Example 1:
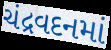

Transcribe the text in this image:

ચંદ્રવદનમાં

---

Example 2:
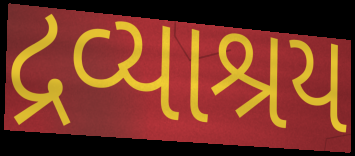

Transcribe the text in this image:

દ્રવ્યાશ્રય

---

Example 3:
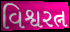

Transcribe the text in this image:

વિશ્વરત્ન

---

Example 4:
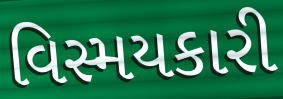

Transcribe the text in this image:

વિસ્મયકારી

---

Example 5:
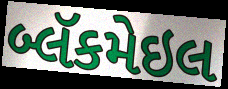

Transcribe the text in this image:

બ્લૅકમેઇલ